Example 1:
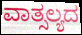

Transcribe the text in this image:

ವಾತ್ಸಲ್ಯದ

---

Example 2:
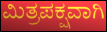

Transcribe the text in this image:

ಮಿತ್ರಪಕ್ಷವಾಗಿ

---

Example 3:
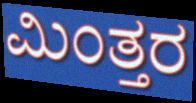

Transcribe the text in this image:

ಮಿಂತ್ತರ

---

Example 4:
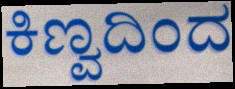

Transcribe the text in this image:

ಕಿಣ್ವದಿಂದ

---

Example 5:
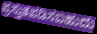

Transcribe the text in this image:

ಪ್ರಸ್ತುತಪಡಿಸಬಹುದು